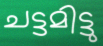
ചട്ടമിട്ടു